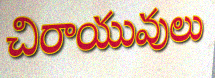
చిరాయువులు